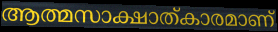
ആത്മസാക്ഷാത്കാരമാണ്